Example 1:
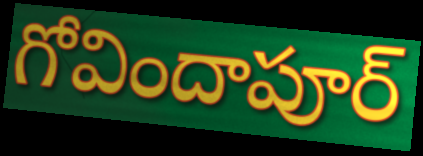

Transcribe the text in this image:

గోవిందాపూర్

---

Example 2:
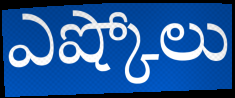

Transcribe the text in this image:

ఎష్కోలు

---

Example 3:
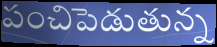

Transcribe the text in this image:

పంచిపెడుతున్న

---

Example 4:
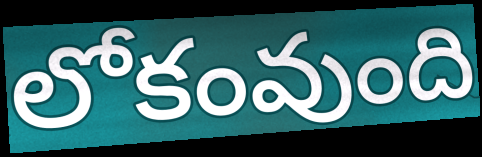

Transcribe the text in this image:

లోకంవుంది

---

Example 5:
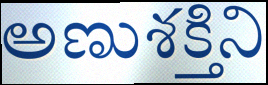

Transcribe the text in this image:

అణుశక్తిని